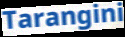
Tarangini